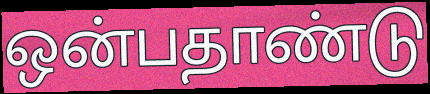
ஒன்பதாண்டு